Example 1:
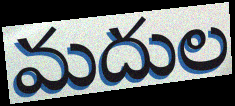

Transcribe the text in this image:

మదుల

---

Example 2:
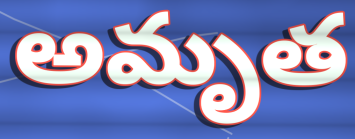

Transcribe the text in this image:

అమృత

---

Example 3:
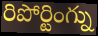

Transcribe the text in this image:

రిపోర్టింగ్ను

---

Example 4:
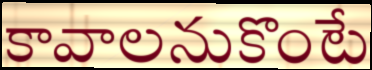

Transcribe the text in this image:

కావాలనుకొంటే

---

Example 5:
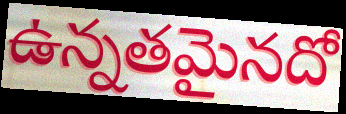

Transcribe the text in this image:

ఉన్నతమైనదో